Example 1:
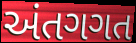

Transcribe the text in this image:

અંતગગત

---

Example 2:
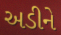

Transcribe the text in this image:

અડીને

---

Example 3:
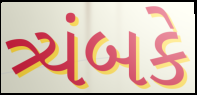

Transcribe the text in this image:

ત્ર્યંબકે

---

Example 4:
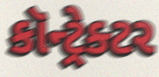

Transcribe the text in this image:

કૉન્ટ્રેક્ટર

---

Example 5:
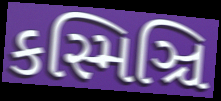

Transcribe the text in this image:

કસ્મિઞ્ચિ